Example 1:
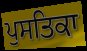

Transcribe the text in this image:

ਪੁਸਤਿਕਾ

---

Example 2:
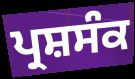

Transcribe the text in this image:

ਪ੍ਰਸ਼ਸੰਕ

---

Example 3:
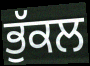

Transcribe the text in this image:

ਭੁੱਕਲ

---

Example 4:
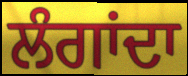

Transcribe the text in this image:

ਲੰਗਾਂਦਾ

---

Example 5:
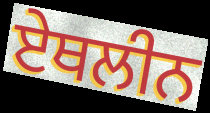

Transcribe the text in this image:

ਏਥਲੀਨ